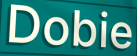
Dobie